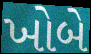
ખોબે